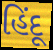
હિંદૂ